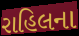
રાહિલના